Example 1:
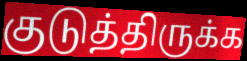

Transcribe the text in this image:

குடுத்திருக்க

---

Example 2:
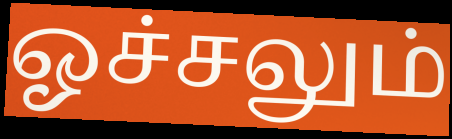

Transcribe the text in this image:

ஓச்சலும்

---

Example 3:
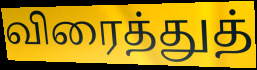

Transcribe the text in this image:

விரைத்துத்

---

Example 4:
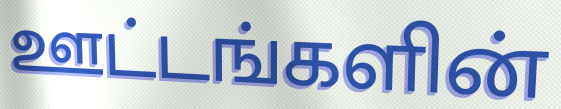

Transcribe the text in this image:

ஊட்டங்களின்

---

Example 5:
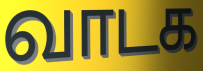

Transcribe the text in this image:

வாடக